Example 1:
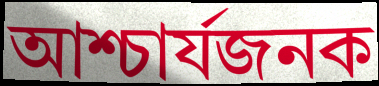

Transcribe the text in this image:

আশ্চার্যজনক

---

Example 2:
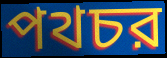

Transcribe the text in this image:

পথচর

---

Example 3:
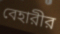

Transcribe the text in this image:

বেহারীর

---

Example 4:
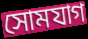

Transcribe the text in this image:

সোমযাগ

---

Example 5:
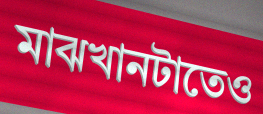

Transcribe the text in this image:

মাঝখানটাতেও